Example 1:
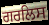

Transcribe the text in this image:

ਗਰਲਿਸ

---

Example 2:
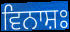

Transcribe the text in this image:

ਵਿਨਾਸ਼ਃ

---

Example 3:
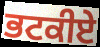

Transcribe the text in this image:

ਭਟਕੀਏ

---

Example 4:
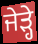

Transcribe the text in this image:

ਜੇੜ੍ਹੇ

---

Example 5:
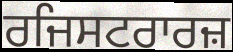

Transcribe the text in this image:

ਰਜਿਸਟਰਾਰਜ਼